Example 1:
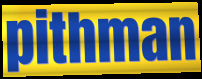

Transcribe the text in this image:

pithman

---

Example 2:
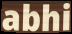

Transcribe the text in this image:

abhi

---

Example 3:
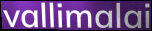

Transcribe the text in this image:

vallimalai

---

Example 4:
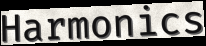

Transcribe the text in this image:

Harmonics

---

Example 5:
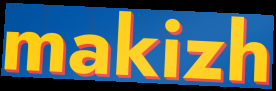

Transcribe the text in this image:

makizh